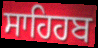
ਸਾਹਿਹਬ